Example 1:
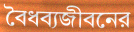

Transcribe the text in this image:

বৈধব্যজীবনের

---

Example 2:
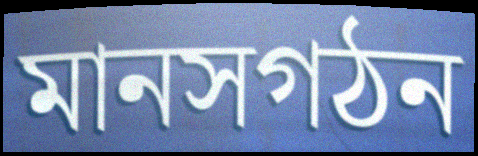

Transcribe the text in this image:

মানসগঠন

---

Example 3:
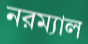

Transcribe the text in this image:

নরম্যাল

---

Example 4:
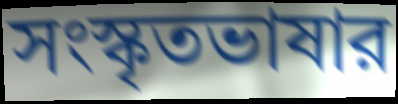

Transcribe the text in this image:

সংস্কৃতভাষার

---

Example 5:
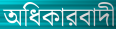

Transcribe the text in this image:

অধিকারবাদী